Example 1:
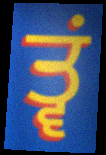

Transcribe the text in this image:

ਤ੍ਵਂ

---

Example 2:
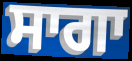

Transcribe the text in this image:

ਸਾਗਾ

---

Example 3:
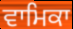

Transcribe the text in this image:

ਵਾਮਿਕਾ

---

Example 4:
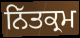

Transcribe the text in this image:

ਨਿੱਤਕ੍ਰਮ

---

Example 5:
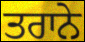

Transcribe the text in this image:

ਤਰਾਨੇ